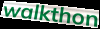
walkthon